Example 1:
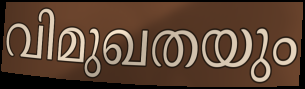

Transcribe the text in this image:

വിമുഖതയും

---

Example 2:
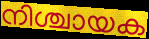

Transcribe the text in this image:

നിശ്ചായക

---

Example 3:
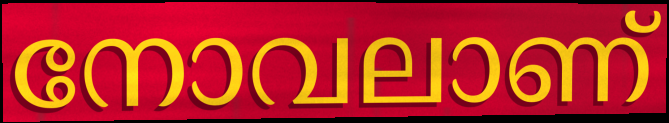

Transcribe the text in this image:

നോവലാണ്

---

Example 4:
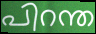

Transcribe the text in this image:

പിറന്ത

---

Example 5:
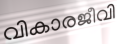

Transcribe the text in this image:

വികാരജീവി